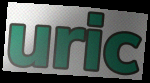
uric